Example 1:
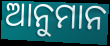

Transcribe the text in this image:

ଆନୁମାନ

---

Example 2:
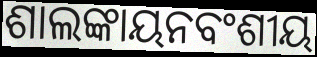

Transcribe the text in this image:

ଶାଲଙ୍କାୟନବଂଶୀୟ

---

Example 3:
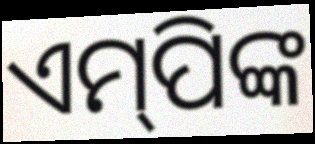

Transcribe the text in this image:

ଏମ୍‌ପିଙ୍କ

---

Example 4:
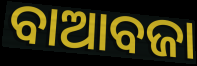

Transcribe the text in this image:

ବାଆବଜା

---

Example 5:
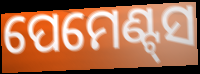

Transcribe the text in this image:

ପେମେଣ୍ଟ୍‌ସ